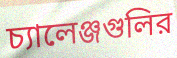
চ্যালেঞ্জগুলির